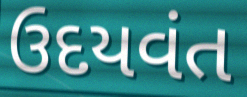
ઉદયવંત